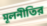
মূলনীতির